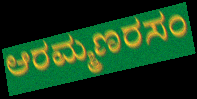
ಆರಮ್ಮಣರಸಂ